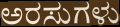
ಅರಸುಗಳು